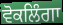
ਵੋਕਲਿੰਗਾ